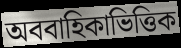
অববাহিকাভিত্তিক